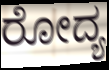
ರೋದ್ಯ